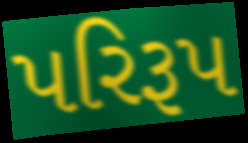
પરિરૂપ